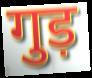
गुड़